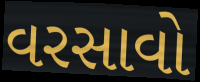
વરસાવો